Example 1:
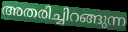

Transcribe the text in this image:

അതരിച്ചിറങ്ങുന്ന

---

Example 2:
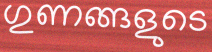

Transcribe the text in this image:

ഗുണങ്ങളുടെ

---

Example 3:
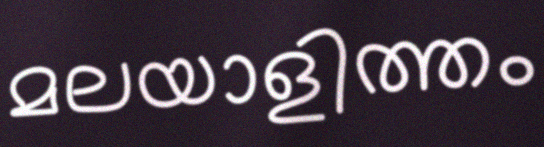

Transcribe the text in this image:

മലയാളിത്തം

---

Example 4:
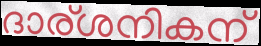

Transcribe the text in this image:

ദാര്ശനികന്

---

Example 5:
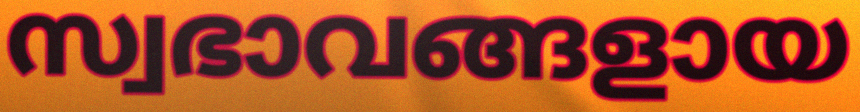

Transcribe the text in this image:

സ്വഭാവങ്ങളായ